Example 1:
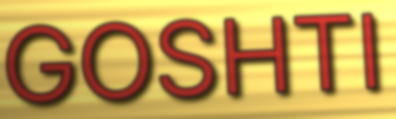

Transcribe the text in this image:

GOSHTI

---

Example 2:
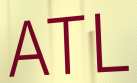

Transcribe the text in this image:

ATL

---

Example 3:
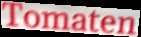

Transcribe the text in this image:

Tomaten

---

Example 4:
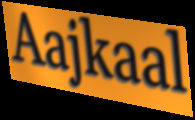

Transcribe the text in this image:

Aajkaal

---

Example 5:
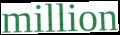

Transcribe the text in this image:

million